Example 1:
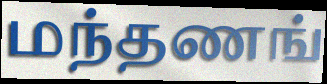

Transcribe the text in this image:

மந்தணங்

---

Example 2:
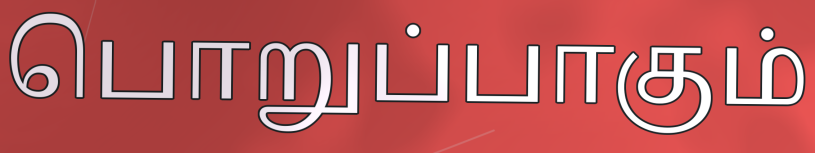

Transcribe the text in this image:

பொறுப்பாகும்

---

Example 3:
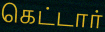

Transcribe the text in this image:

கெட்டார்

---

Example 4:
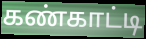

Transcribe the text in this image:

கண்காட்டி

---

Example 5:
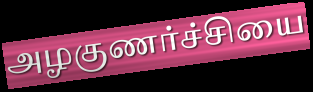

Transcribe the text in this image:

அழகுணர்ச்சியை